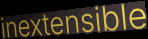
inextensible